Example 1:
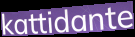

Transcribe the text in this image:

kattidante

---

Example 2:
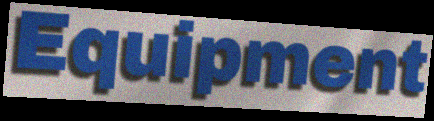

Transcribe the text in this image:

Equipment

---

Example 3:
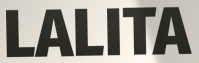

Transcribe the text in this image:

LALITA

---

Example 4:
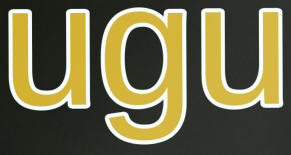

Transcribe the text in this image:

ugu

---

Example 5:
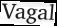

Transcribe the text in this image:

Vagal